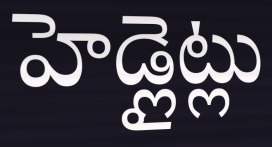
హెడ్లైట్లు